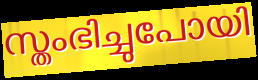
സ്തംഭിച്ചുപോയി